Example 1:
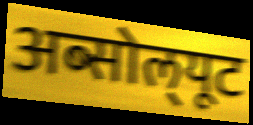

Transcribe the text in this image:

अब्सोल्यूट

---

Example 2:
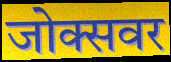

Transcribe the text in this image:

जोक्सवर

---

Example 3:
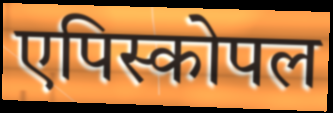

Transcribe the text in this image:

एपिस्कोपल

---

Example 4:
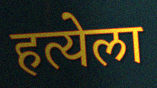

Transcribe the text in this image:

हत्येला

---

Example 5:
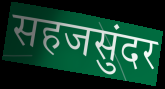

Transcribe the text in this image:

सहजसुंदर